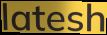
latesh